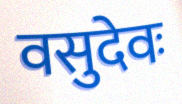
वसुदेवः